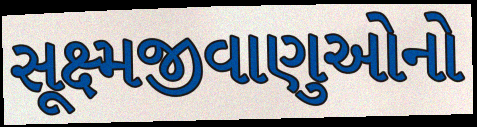
સૂક્ષ્મજીવાણુઓનો